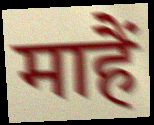
माहैं